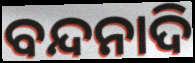
ବନ୍ଦନାଦି